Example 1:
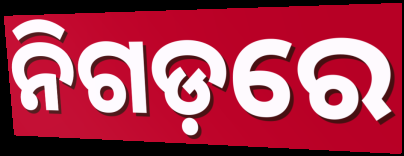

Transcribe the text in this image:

ନିଗଡ଼ରେ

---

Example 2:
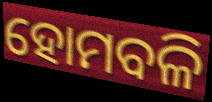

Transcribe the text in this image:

ହୋମବଳି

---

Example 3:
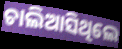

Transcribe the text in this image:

ଚାଲିଆସିଥିଲେ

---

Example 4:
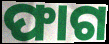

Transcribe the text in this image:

ଫାଗ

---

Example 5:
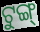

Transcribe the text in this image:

ଟୁଙ୍ଗ୍